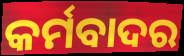
କର୍ମବାଦର